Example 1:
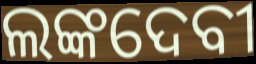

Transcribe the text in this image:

ଲଙ୍କଦେବୀ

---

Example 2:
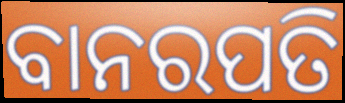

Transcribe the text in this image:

ବାନରପତି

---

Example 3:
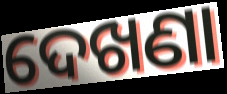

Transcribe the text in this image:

ଦେଖଣା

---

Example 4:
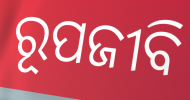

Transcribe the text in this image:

ରୂପଜୀବି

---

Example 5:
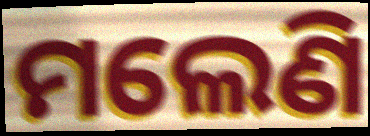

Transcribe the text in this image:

ମଲେଣି